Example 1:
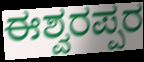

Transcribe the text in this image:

ಈಶ್ವರಪ್ಪರ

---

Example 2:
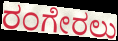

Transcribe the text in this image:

ರಂಗೇರಲು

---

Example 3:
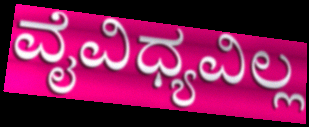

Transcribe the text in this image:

ವೈವಿಧ್ಯವಿಲ್ಲ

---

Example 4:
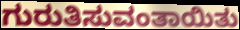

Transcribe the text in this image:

ಗುರುತಿಸುವಂತಾಯಿತು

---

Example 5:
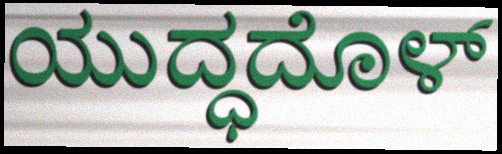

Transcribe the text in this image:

ಯುದ್ಧದೊಳ್